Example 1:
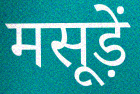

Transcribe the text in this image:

मसूड़ें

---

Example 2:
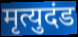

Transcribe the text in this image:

मृत्युदंड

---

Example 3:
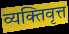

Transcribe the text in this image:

व्यक्तिवृत्त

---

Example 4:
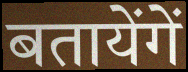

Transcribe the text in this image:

बतायेंगें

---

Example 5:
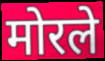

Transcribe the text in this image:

मोरले